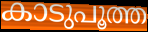
കാടുപൂത്ത